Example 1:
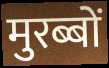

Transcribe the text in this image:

मुरब्बों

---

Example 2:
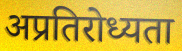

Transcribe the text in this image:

अप्रतिरोध्यता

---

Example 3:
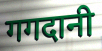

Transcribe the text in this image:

गगदानी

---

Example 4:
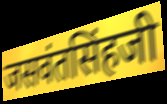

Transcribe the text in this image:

जसवंतसिंहजी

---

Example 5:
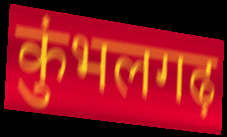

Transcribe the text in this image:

कुंभलगढ़